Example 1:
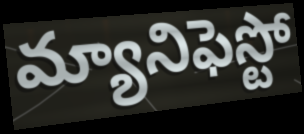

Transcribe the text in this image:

మ్యానిఫెస్టో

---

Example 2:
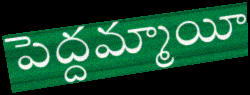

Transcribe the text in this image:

పెద్దమ్మాయీ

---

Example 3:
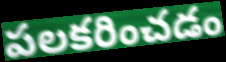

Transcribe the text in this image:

పలకరించడం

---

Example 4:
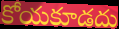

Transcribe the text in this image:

కోయకూడదు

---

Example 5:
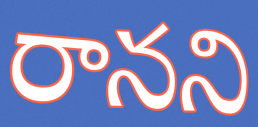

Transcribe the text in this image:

రానని